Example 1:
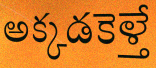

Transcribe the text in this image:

అక్కడకెళ్తే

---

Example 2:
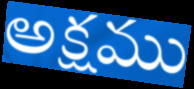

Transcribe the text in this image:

అక్షము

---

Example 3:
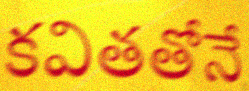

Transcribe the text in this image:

కవితతోనే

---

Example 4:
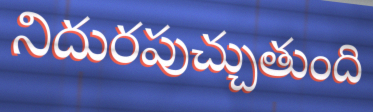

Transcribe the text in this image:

నిదురపుచ్చుతుంది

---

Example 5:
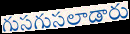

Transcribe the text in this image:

గుసగుసలాడారు